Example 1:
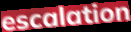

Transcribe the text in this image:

escalation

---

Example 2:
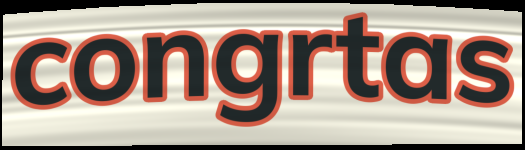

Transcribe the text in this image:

congrtas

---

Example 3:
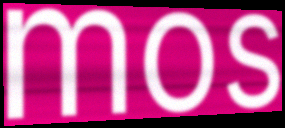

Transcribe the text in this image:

mos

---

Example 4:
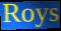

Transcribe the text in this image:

Roys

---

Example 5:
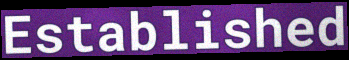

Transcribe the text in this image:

Established